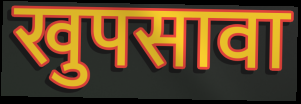
खुपसावा